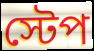
স্টেপ